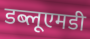
डब्लूएमडी